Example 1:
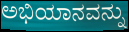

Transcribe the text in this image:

ಅಭಿಯಾನವನ್ನು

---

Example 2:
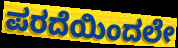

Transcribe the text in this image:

ಪರದೆಯಿಂದಲೇ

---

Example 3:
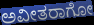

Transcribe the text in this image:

ಅವೀತರಾಗೋ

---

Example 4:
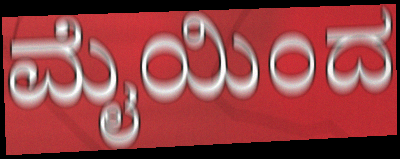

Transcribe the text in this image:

ಮೈಯಿಂದ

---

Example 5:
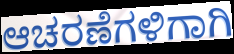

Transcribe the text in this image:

ಆಚರಣೆಗಳಿಗಾಗಿ